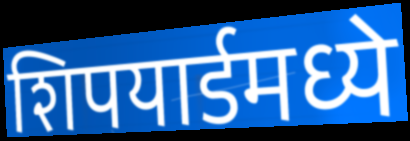
शिपयार्डमध्ये